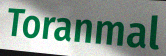
Toranmal